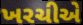
ખરચીએ